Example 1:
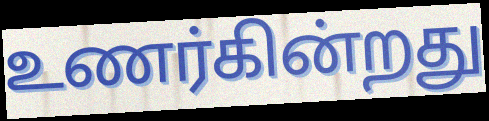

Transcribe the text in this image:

உணர்கின்றது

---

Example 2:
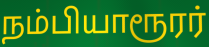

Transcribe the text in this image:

நம்பியாரூரர்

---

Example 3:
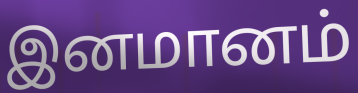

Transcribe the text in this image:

இனமானம்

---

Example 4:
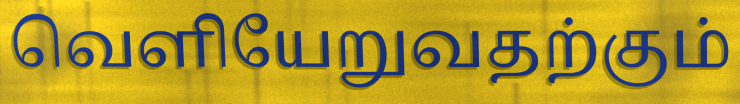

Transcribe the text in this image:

வெளியேறுவதற்கும்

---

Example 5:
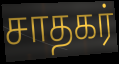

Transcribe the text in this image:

சாதகர்